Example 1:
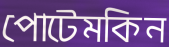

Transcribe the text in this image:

পোটেমকিন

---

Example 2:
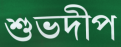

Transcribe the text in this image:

শুভদীপ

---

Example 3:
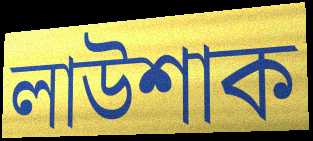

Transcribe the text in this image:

লাউশাক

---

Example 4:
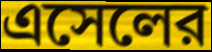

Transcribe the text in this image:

এসেলের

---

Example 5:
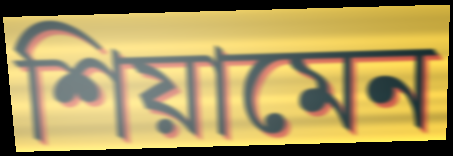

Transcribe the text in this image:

শিয়ামেন